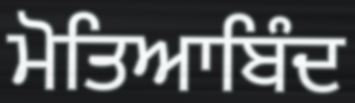
ਮੋਤਿਆਬਿੰਦ